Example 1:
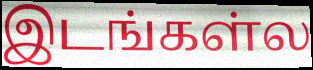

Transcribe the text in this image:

இடங்கள்ல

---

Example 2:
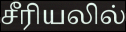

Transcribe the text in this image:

சீரியலில்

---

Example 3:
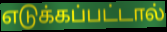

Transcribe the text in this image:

எடுக்கப்பட்டால்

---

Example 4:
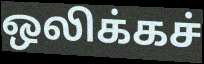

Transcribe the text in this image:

ஒலிக்கச்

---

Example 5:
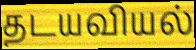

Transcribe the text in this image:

தடயவியல்